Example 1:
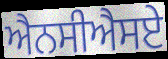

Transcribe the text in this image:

ਐਨਸੀਐਸਏ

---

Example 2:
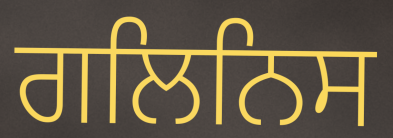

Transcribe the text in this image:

ਗਲਿਨਿਸ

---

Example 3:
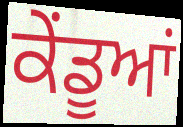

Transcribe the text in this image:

ਕੇਂਡੂਆਂ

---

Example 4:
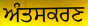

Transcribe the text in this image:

ਅੰਤਸਕਰਣ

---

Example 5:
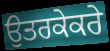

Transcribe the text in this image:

ਉਤਰਕੇਕਰੇ